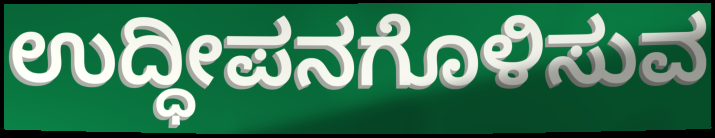
ಉದ್ಧೀಪನಗೊಳಿಸುವ